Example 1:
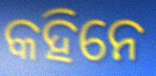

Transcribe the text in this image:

କହିନେ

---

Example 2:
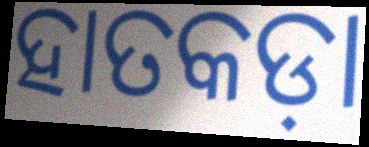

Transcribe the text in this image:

ହାତକଡ଼ା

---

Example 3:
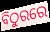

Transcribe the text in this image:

ବିଠୁରରେ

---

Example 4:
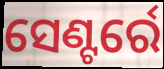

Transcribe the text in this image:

ସେଣ୍ଟର୍ରେ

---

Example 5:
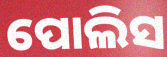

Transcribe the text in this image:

ପୋଲିସ